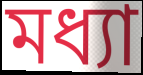
মধ্যা